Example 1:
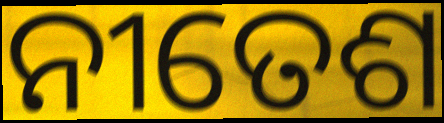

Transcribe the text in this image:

ନୀତେଶ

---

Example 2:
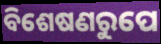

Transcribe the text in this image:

ବିଶେଷଣରୁପେ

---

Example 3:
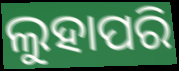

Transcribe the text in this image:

ଲୁହାପରି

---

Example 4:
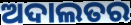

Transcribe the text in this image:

ଅଦାଲତର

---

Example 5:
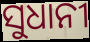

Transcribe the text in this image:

ସୁଧାନୀ